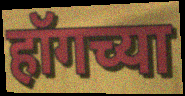
हॉगच्या